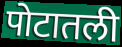
पोटातली